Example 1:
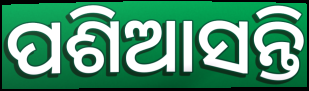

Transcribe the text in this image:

ପଶିଆସନ୍ତି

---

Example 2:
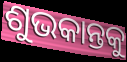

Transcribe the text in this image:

ଶୁଭକାନ୍ତକୁ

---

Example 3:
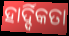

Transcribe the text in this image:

ହାର୍ଦ୍ଦିକତା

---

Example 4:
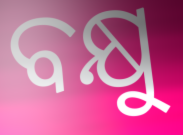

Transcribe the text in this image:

ବକ୍ଷୁ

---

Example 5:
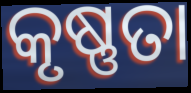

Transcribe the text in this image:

କୃଷ୍ଣତା